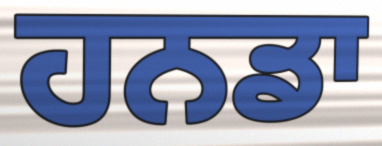
ਹਨਡਾ